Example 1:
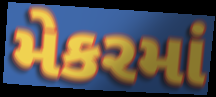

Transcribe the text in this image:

મેકરમાં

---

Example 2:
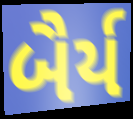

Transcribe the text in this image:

બૈર્ય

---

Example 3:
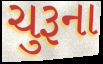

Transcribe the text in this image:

ચુરૂના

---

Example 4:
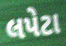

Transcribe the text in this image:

લપેટા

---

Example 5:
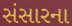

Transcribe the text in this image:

સંસારના